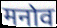
मनोव